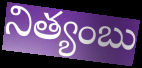
నిత్యంబు